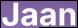
Jaan